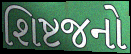
શિષ્ટજનો